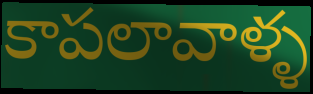
కాపలావాళ్ళ